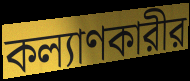
কল্যাণকারীর